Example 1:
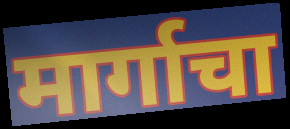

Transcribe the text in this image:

मार्गाचा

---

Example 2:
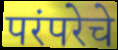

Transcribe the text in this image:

परंपरेचे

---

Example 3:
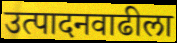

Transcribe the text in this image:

उत्पादनवाढीला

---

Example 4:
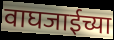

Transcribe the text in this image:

वाघजाईच्या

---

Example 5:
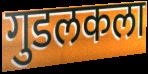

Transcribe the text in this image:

गुडलकला